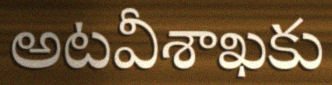
అటవీశాఖకు